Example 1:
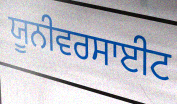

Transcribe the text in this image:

ਯੂਨੀਵਰਸਾਈਟ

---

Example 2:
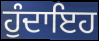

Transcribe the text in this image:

ਹੁੰਦਾਇਹ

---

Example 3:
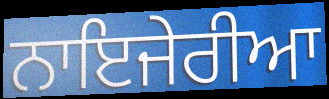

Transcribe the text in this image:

ਨਾਇਜੇਰੀਆ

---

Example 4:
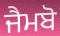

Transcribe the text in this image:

ਜੈਮਬੋ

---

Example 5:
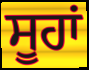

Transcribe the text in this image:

ਸੂਹਾਂ